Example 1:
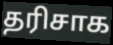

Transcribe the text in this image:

தரிசாக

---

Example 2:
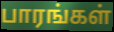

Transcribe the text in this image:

பாரங்கள்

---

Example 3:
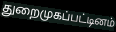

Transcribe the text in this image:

துறைமுகப்பட்டினம்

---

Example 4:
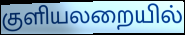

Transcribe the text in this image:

குளியலறையில்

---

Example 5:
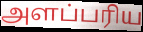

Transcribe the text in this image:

அளப்பரிய